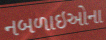
નબળાઇઓના